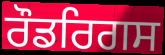
ਰੌਡਰਿਗਸ